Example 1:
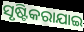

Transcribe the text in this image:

ସୃଷ୍ଟିକରାଯାଇ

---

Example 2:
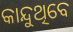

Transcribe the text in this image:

କାନ୍ଦୁଥିବେ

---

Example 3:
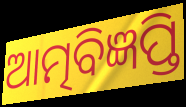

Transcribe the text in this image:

ଆତ୍ମବିଜ୍ଞପ୍ତି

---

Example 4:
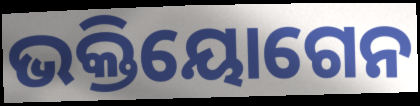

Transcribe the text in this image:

ଭକ୍ତିୟୋଗେନ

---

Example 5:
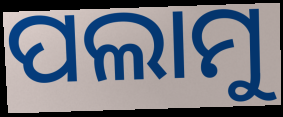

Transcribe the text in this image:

ପଲାମୁ